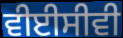
ਵੀਈਸੀਵੀ